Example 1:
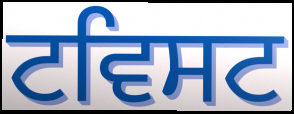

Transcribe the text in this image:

ਟਵਿਸਟ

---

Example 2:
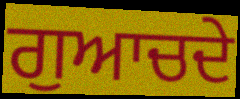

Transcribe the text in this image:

ਗੁਆਚਦੇ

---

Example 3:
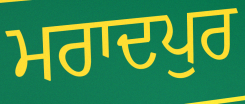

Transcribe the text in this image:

ਮਰਾਦਪੁਰ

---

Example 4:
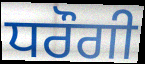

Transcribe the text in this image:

ਧਰੌਗੀ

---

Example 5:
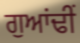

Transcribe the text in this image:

ਗੁਆਂਢੀਂ